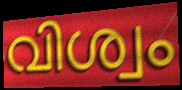
വിശ്വം